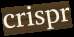
crispr